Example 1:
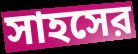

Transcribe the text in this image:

সাহসের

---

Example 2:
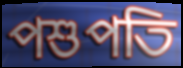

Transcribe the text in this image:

পশুপতি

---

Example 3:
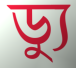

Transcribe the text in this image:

ড্যু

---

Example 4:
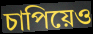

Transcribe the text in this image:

চাপিয়েও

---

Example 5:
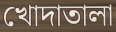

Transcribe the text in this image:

খোদাতালা